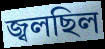
জ্বলছিল